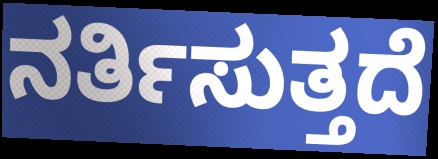
ನರ್ತಿಸುತ್ತದೆ